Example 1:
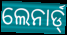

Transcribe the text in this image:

ଲେନାର୍ଡ୍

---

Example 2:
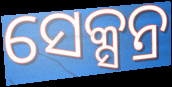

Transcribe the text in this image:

ସେକ୍ସନ୍ର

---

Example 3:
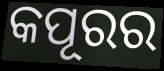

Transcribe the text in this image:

କପୂରର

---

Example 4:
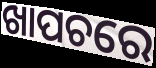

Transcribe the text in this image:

ଖାପଚରେ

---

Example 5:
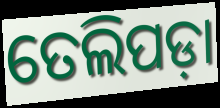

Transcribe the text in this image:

ତେଲିପଡ଼ା